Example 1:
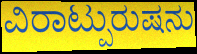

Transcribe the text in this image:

ವಿರಾಟ್ಪುರುಷನು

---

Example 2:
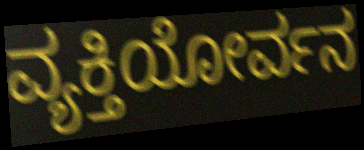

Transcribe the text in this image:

ವ್ಯಕ್ತಿಯೋರ್ವನ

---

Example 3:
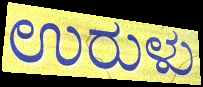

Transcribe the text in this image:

ಉರುಳು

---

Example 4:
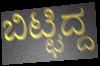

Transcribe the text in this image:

ಬಿಟ್ಟಿದ್ದ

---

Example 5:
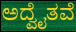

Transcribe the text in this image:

ಅದ್ವೈತವೆ